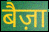
बैज़ा